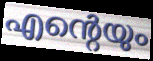
എന്റെയും